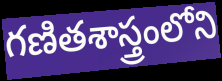
గణితశాస్త్రంలోని